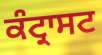
ਕੰਟ੍ਰਾਸਟ